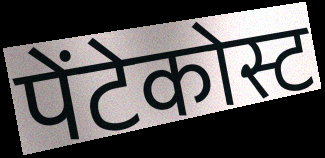
पेंटेकोस्ट